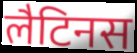
लैटिनस